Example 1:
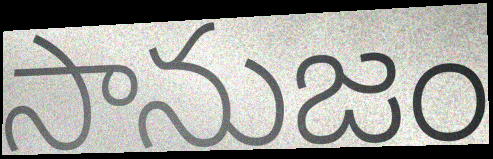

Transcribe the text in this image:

సానుజం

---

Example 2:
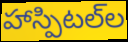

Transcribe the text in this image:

హాస్పిటల్‌ల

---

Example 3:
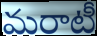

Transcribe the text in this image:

మరాటీ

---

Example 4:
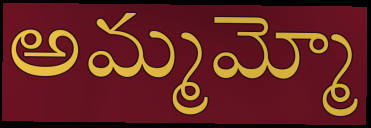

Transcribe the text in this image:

అమ్మమ్మో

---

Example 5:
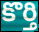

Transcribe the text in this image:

కొర్తి